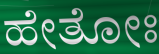
ಹೇತೋಃ